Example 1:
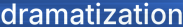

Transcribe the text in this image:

dramatization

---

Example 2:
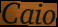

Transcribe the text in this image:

Caio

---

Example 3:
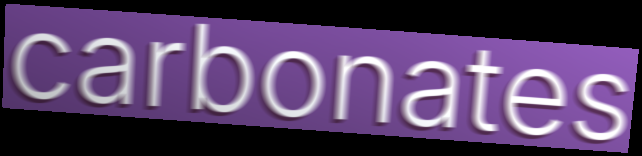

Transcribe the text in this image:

carbonates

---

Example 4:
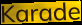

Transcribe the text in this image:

Karade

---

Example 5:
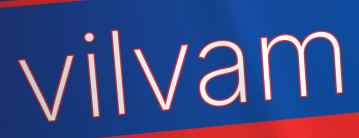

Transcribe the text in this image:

vilvam